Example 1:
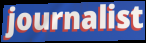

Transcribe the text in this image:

journalist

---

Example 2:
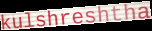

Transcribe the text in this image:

kulshreshtha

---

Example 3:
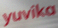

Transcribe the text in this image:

yuvika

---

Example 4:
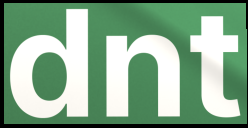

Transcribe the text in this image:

dnt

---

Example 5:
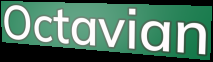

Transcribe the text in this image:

Octavian